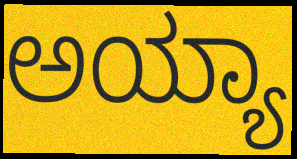
ಅಯ್ಯಾ